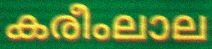
കരീംലാല